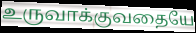
உருவாக்குவதையே